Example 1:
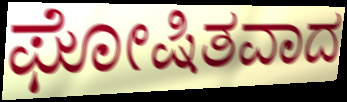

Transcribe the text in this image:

ಘೋಷಿತವಾದ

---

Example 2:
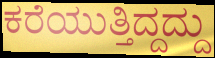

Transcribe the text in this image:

ಕರೆಯುತ್ತಿದ್ದದ್ದು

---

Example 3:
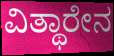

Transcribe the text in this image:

ವಿತ್ಥಾರೇನ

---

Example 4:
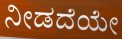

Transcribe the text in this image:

ನೀಡದೆಯೇ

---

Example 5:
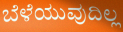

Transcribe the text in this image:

ಬೆಳೆಯುವುದಿಲ್ಲ